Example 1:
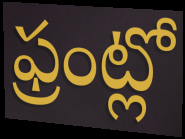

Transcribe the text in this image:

ఫ్రంట్లో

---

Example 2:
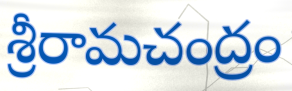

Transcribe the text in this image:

శ్రీరామచంద్రం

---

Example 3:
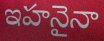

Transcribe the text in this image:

ఇహనైనా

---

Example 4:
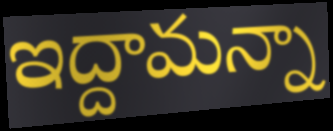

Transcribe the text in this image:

ఇద్దామన్నా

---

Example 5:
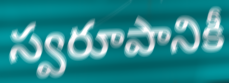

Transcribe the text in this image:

స్వరూపానికీ